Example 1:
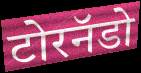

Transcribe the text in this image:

टोरनॅडो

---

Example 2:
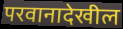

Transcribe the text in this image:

परवानादेखील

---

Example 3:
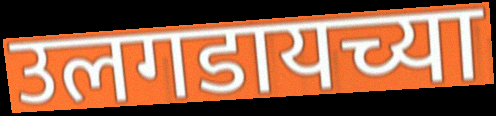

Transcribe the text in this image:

उलगडायच्या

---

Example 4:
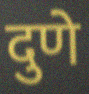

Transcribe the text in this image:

दुणे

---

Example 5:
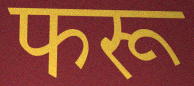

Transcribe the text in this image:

फरू